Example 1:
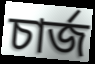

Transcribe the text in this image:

চার্জ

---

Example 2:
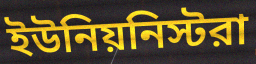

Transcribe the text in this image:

ইউনিয়নিস্টরা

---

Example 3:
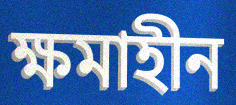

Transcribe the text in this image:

ক্ষমাহীন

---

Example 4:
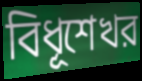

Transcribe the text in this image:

বিধূশেখর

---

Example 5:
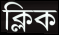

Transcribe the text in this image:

ক্লিক